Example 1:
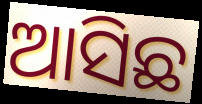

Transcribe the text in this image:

ଆସିଛ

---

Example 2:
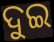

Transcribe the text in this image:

ଦୁଇ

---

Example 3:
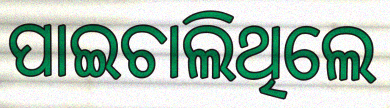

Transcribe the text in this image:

ପାଇଚାଲିଥିଲେ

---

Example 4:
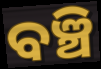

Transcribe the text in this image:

ବଞ୍ଚି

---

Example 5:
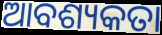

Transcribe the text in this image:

ଆବଶ୍ୟକତା